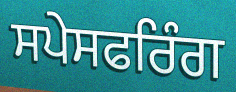
ਸਪੇਸਫਰਿੰਗ